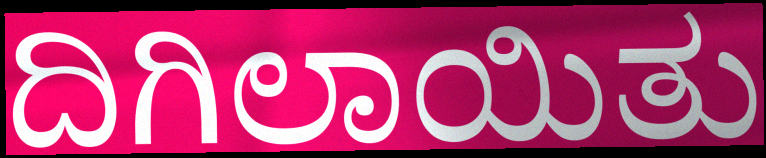
ದಿಗಿಲಾಯಿತು